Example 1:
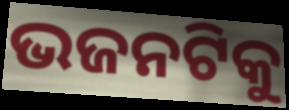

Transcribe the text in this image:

ଭଜନଟିକୁ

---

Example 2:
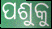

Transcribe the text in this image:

ପଶୁକୁ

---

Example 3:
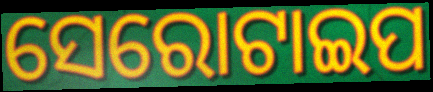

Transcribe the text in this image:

ସେରୋଟାଇପ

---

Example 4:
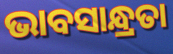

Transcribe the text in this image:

ଭାବସାନ୍ଧ୍ରତା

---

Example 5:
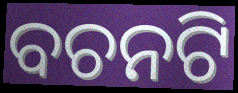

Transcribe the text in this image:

ବଚନଟି